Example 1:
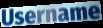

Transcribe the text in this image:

Username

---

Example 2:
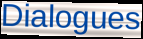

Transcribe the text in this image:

Dialogues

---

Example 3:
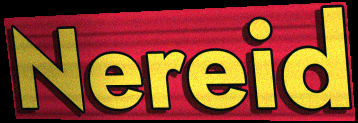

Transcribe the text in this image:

Nereid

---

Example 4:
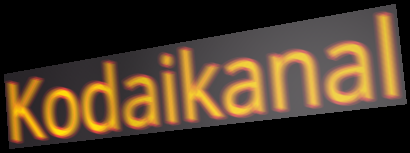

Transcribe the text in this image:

Kodaikanal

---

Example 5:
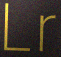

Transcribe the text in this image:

Lr